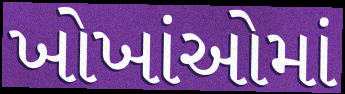
ખોખાંઓમાં